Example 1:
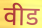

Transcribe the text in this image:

वीड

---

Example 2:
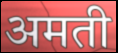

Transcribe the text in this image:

अमती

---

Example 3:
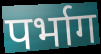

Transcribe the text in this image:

पर्भाग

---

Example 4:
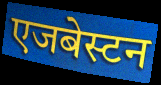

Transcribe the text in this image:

एजबेस्‍टन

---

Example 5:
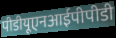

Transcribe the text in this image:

पीडीयूएनआईपीपीडी